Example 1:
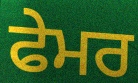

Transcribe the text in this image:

ਫੇਮਰ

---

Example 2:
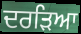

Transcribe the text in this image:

ਦਰੜਿਆ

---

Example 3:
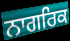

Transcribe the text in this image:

ਨਾਗਰਿਕ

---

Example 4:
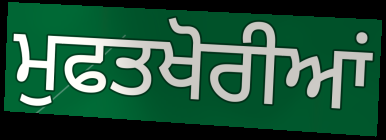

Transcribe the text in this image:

ਮੁਫਤਖੋਰੀਆਂ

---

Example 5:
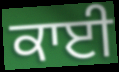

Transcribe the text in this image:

ਕਾਈ